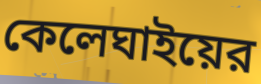
কেলেঘাইয়ের